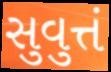
સુવુત્તં